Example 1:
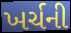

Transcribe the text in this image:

ખર્ચની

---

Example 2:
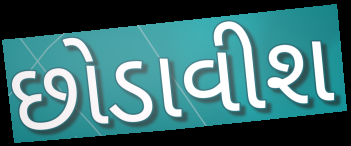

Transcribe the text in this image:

છોડાવીશ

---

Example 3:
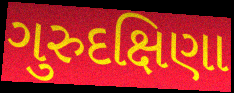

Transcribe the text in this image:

ગુરુદક્ષિણા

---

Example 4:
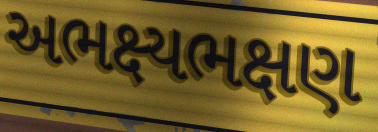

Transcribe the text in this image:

અભક્ષ્યભક્ષણ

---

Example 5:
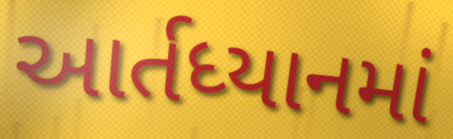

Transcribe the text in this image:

આર્તધ્યાનમાં